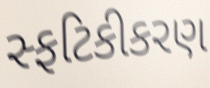
સ્ફટિકીકરણ